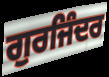
ਗੁਰਜਿੰਦਰ